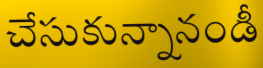
చేసుకున్నానండీ